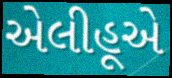
એલીહૂએ